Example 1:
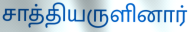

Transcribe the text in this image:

சாத்தியருளினார்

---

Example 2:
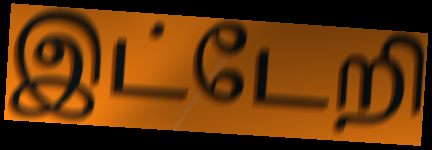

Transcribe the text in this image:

இட்டேறி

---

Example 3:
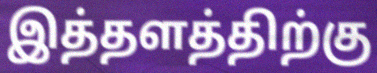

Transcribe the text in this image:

இத்தளத்திற்கு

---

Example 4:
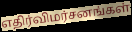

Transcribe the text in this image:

எதிர்விமர்சனங்கள்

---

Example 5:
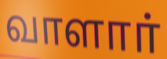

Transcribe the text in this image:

வாளார்